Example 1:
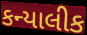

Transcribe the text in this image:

કન્યાલીક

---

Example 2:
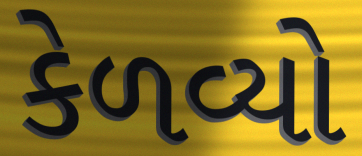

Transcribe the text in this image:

કેળવ્યો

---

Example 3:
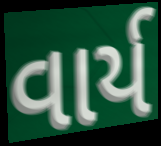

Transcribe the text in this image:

વાર્ય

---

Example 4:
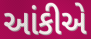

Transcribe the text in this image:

આંકીએ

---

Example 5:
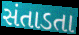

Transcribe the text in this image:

સંતાડતા